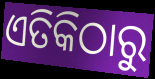
ଏତିକିଠାରୁ